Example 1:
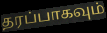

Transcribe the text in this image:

தரப்பாகவும்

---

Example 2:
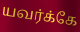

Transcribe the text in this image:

யவர்க்கே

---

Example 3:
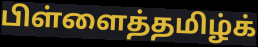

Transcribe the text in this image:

பிள்ளைத்தமிழ்க்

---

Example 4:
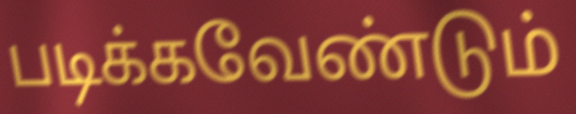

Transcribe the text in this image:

படிக்கவேண்டும்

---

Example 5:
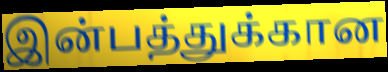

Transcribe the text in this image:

இன்பத்துக்கான